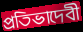
প্রতিভাদেবী